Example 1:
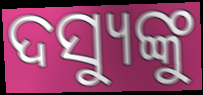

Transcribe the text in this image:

ଦସ୍ୟୁଙ୍କୁ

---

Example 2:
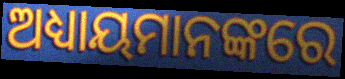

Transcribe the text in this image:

ଅଧ୍ୟାୟମାନଙ୍କରେ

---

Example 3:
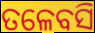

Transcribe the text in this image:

ତଳେବସି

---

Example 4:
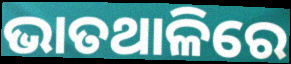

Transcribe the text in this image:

ଭାତଥାଳିରେ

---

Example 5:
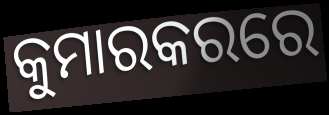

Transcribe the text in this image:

କୁମାରକରରେ